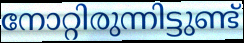
നോറ്റിരുന്നിട്ടുണ്ട്